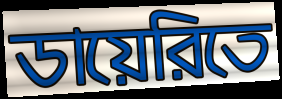
ডায়েরিতে